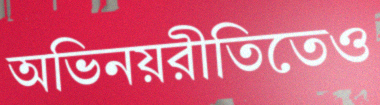
অভিনয়রীতিতেও